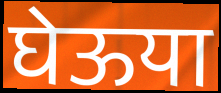
घेऊया